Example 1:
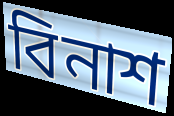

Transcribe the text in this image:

বিনাশ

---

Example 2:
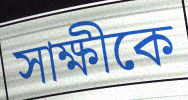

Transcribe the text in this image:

সাক্ষীকে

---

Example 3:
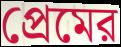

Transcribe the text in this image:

প্রেমের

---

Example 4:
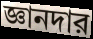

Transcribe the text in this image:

জ্ঞানদার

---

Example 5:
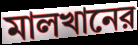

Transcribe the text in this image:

মালখানের